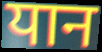
यान